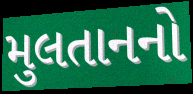
મુલતાનનો